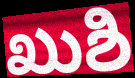
ಖುಶಿ